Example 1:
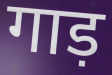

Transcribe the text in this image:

गाड़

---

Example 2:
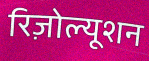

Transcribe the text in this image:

रिज़ोल्यूशन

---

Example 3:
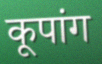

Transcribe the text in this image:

कूपांग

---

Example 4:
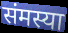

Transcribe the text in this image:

संमस्या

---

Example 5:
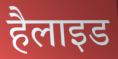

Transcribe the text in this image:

हैलाइड